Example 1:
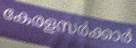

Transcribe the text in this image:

കേരളസർക്കാർ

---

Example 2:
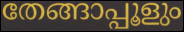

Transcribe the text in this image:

തേങ്ങാപ്പൂളും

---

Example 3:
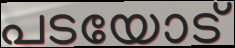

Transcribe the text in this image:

പടയോട്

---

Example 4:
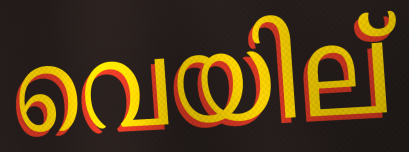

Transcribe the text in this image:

വെയില്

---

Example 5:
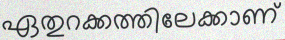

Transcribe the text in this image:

ഏതുറക്കത്തിലേക്കാണ്